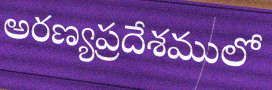
అరణ్యప్రదేశములో